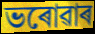
ভৰোৱাৰ